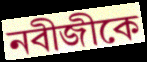
নবীজীকে